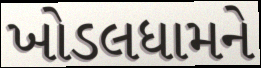
ખોડલધામને